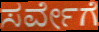
ಸರ್ವೇಗೆ